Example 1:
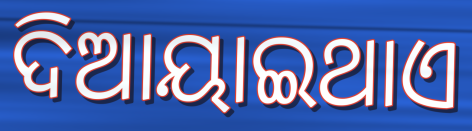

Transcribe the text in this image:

ଦିଆୟାଇଥାଏ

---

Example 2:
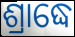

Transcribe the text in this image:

ଶ୍ରାଦ୍ଧେ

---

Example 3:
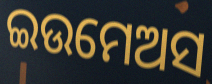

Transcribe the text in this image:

ଇଉମେଅସ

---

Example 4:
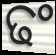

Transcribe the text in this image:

ଢଂ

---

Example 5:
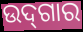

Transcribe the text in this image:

ଉଦ୍‌ଗାର